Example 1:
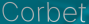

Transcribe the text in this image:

Corbet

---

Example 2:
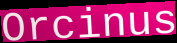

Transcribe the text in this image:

Orcinus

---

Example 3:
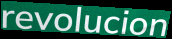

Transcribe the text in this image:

revolucion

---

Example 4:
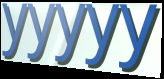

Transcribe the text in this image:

yyyyy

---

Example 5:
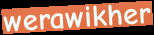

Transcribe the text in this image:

werawikher